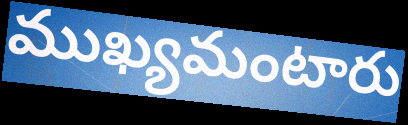
ముఖ్యమంటారు